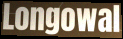
Longowal